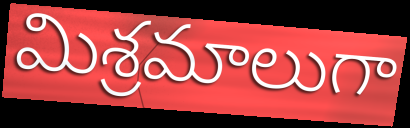
మిశ్రమాలుగా